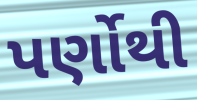
પર્ણોથી